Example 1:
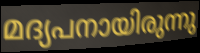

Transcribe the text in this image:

മദ്യപനായിരുന്നു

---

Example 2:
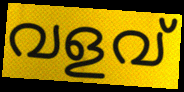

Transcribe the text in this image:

വളവ്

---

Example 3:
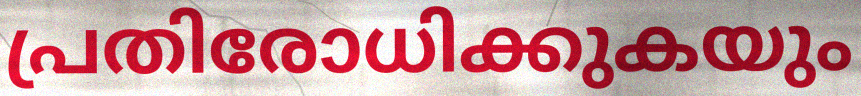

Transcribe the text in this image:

പ്രതിരോധിക്കുകയും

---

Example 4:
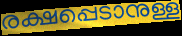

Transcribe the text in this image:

രക്ഷപ്പെടാനുള്ള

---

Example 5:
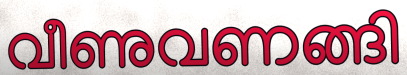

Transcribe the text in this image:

വീണുവണങ്ങി